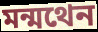
মন্মথেন